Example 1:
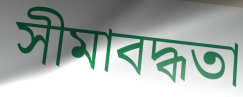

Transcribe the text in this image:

সীমাবদ্ধতা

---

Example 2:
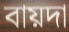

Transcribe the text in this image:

বায়দা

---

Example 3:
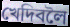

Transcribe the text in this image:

খেদিবলৈ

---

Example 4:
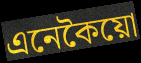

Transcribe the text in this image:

এনেকৈয়ো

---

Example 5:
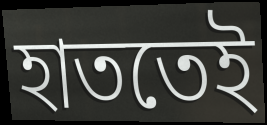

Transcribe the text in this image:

হাততেই